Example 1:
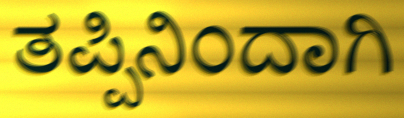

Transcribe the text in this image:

ತಪ್ಪಿನಿಂದಾಗಿ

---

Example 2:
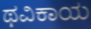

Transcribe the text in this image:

ಥವಿಕಾಯ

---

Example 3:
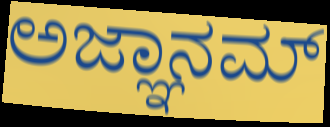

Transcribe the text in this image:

ಅಜ್ಞಾನಮ್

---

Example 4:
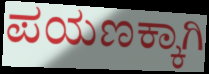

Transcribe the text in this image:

ಪಯಣಕ್ಕಾಗಿ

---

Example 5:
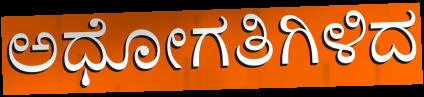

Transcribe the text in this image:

ಅಧೋಗತಿಗಿಳಿದ